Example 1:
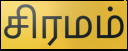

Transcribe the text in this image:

சிரமம்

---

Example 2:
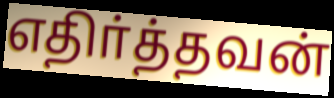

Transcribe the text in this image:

எதிர்த்தவன்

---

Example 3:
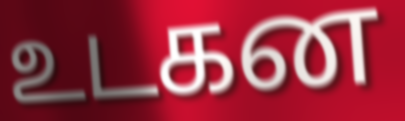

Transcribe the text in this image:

உடகன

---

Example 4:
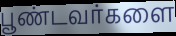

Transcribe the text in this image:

பூண்டவர்களை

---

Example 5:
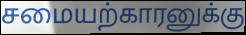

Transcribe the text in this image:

சமையற்காரனுக்கு